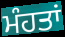
ਮੰਹਤਾਂ